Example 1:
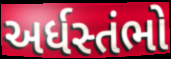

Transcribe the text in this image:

અર્ધસ્તંભો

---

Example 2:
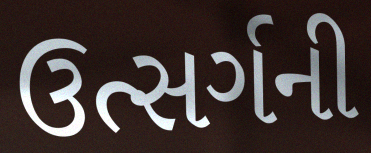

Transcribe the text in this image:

ઉત્સર્ગની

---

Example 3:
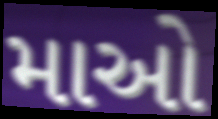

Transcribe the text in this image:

માઓ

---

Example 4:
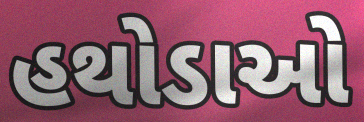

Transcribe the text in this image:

હથોડાઓ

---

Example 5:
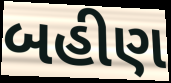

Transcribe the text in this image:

બહીણ